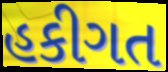
હકીગત